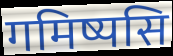
गमिष्यसि